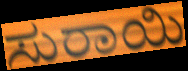
ಸುರಾಯಿ